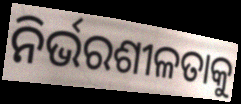
ନିର୍ଭରଶୀଳତାକୁ